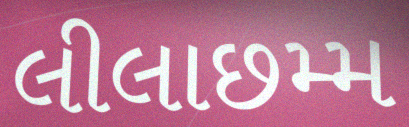
લીલાછમ્મ